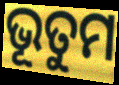
ଭୂତୁମ